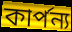
কার্পন্য